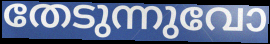
തേടുന്നുവോ